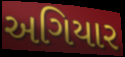
અગિયાર